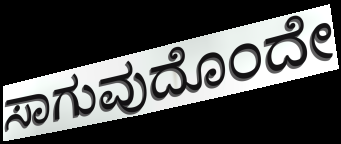
ಸಾಗುವುದೊಂದೇ